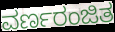
ವರ್ಣರಂಜಿತ